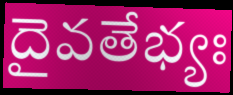
దైవతేభ్యః